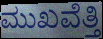
ಮುಖವೆತ್ತಿ